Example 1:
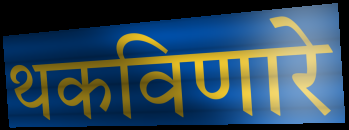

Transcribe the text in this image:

थकविणारे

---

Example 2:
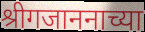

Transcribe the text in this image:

श्रीगजाननाच्या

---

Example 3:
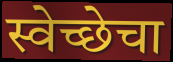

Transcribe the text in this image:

स्वेच्छेचा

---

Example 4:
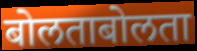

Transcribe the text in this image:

बोलताबोलता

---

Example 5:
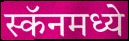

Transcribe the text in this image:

स्कॅनमध्ये